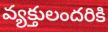
వ్యక్తులందరికి